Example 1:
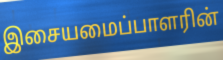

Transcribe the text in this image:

இசையமைப்பாளரின்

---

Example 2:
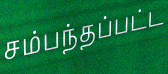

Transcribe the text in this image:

சம்பந்தப்பட்ட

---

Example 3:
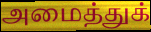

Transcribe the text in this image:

அமைத்துக்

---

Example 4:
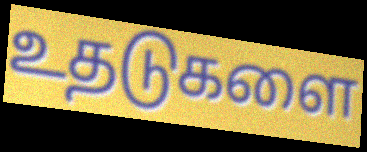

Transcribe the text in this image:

உதடுகளை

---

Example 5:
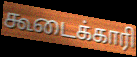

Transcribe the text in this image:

கூடைக்காரி